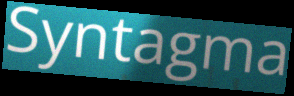
Syntagma